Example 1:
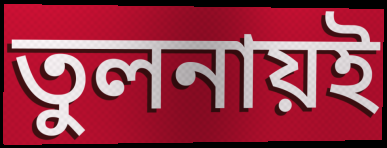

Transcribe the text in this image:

তুলনায়ই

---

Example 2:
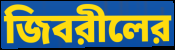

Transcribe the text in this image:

জিবরীলের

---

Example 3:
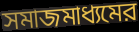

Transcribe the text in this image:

সমাজমাধ্যমের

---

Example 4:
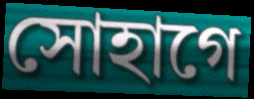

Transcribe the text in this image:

সোহাগে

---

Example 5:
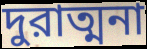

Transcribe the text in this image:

দুরাত্মনা